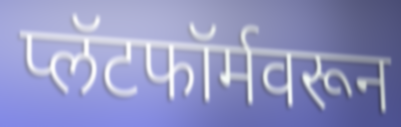
प्लॅटफॉर्मवरून